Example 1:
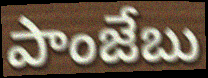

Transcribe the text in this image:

పాంజేబు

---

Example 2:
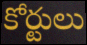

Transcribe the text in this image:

కోర్టులు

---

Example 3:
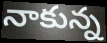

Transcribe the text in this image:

నాకున్న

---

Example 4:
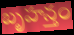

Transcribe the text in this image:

బృహన్తం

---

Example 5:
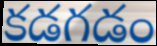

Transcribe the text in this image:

కడగడం